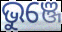
ଭୁଞ୍ଜେ